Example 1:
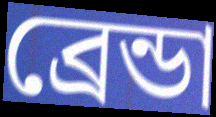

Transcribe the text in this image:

ব্রেন্ডা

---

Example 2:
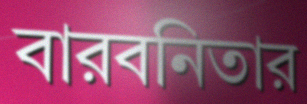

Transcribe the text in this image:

বারবনিতার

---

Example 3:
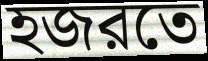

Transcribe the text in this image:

হজরতে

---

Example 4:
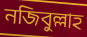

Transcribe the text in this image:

নজিবুল্লাহ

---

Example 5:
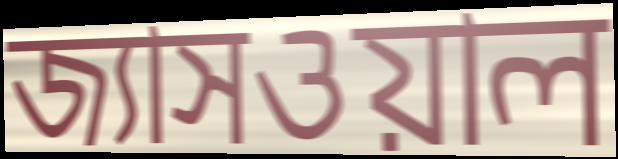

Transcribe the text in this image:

জ্যাসওয়াল